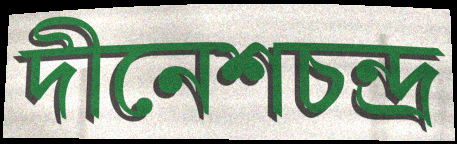
দীনেশচন্দ্র